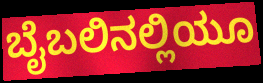
ಬೈಬಲಿನಲ್ಲಿಯೂ